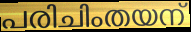
പരിചിംതയന്